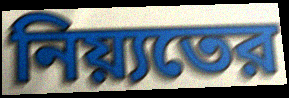
নিয়্যতের